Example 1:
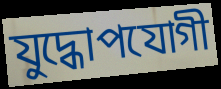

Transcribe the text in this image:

যুদ্ধোপযোগী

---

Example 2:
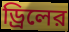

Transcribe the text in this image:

ড্রিলের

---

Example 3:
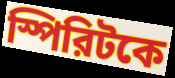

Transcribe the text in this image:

স্পিরিটকে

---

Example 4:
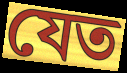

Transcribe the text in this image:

যেত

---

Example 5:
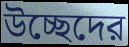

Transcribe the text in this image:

উচ্ছেদের